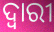
ଦ୍ଵାରୀ